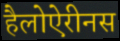
हैलोऐरीनस